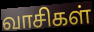
வாசிகள்